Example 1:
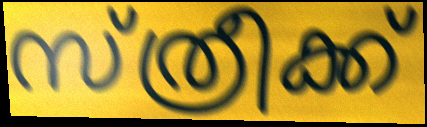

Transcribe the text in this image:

സ്‌ത്രീക്ക്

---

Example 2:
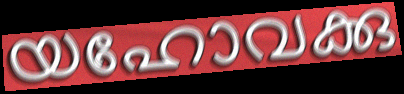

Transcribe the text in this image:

യഹോവക്കു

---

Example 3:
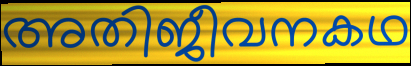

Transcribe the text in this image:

അതിജീവനകഥ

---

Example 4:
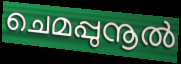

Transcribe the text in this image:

ചെമപ്പുനൂൽ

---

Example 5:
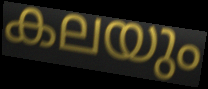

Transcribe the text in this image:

കലയും